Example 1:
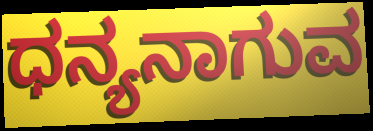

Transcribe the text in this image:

ಧನ್ಯನಾಗುವ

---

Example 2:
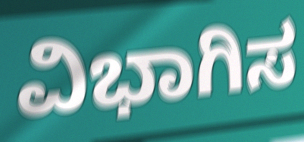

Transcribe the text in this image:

ವಿಭಾಗಿಸ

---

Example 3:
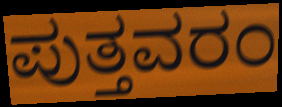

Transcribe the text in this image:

ಪುತ್ತವರಂ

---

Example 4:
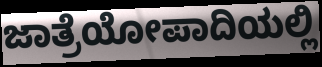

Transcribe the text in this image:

ಜಾತ್ರೆಯೋಪಾದಿಯಲ್ಲಿ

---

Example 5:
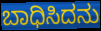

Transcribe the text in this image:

ಬಾಧಿಸಿದನು